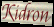
Kidron